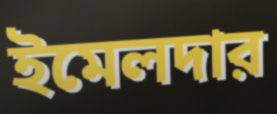
ইমেলদার